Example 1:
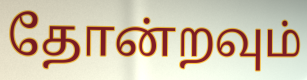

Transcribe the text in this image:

தோன்றவும்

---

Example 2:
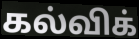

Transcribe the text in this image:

கல்விக்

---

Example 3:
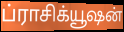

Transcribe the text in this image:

ப்ராசிக்யூஷன்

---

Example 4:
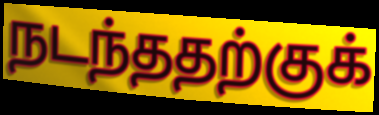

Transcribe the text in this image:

நடந்ததற்குக்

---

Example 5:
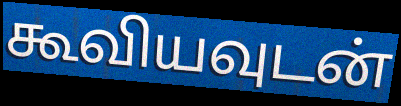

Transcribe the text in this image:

கூவியவுடன்